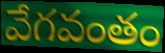
వేగవంతం